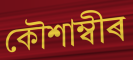
কৌশাম্বীৰ